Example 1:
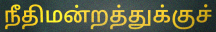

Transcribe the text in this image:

நீதிமன்றத்துக்குச்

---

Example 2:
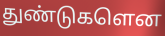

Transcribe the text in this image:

துண்டுகளென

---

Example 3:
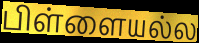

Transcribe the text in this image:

பிள்ளையல்ல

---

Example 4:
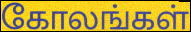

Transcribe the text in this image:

கோலங்கள்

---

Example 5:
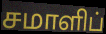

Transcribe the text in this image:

சமாளிப்